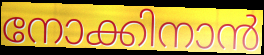
നോക്കിനാൻ